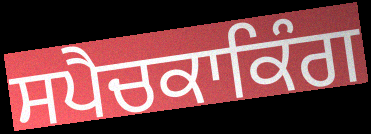
ਸਪੈਚਕਾਕਿੰਗ